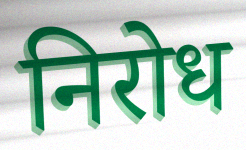
निरोध